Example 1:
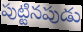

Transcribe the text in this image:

పుట్టినపుడు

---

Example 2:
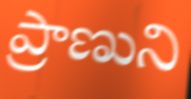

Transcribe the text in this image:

ప్రాణుని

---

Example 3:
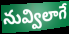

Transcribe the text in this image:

నువ్విలాగే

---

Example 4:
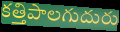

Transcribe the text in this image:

కత్తిపాలగుదురు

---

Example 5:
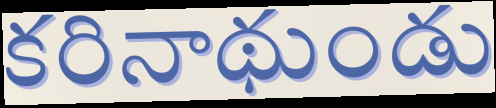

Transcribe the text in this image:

కరినాథుండు